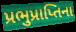
પ્રભુપ્રાપ્તિના